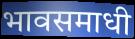
भावसमाधी